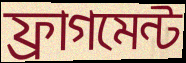
ফ্ৰাগমেন্ট